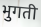
भुगती